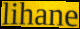
lihane